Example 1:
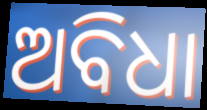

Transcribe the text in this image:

ଅବିଧା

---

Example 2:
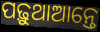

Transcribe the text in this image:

ପଢ଼ୁଥାଆନ୍ତେ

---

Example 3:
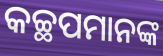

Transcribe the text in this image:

କଚ୍ଛପମାନଙ୍କ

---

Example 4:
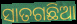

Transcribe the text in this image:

ସାତଗଛିଆ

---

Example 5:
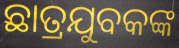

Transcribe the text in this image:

ଛାତ୍ରଯୁବକଙ୍କ